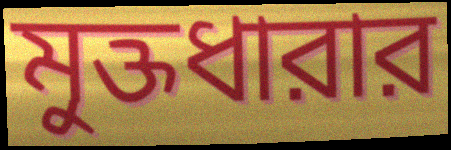
মুক্তধারার